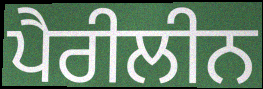
ਪੈਰੀਲੀਨ